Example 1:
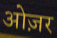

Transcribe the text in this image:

ओज़र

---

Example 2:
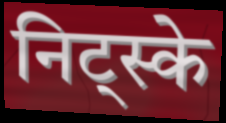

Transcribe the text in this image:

निट्स्के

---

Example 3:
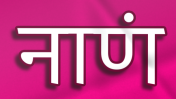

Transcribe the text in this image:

नाणं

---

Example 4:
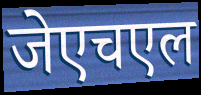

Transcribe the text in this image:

जेएचएल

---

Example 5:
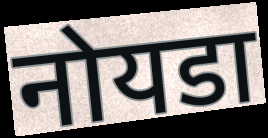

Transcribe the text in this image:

नोयडा